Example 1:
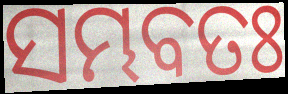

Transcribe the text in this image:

ସମ୍ଭବତଃ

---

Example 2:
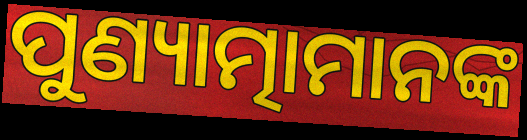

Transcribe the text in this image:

ପୁଣ୍ୟାତ୍ମାମାନଙ୍କ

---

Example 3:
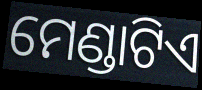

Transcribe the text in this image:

ମେଣ୍ଡାଟିଏ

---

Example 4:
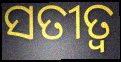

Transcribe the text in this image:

ସତୀତ୍ଵ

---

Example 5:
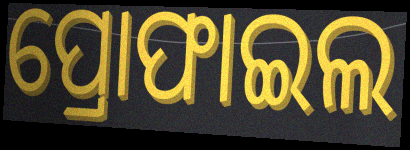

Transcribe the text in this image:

ପ୍ରୋଫାଇଲ